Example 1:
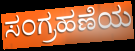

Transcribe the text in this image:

ಸಂಗ್ರಹಣೆಯ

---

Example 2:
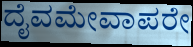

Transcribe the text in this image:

ದೈವಮೇವಾಪರೇ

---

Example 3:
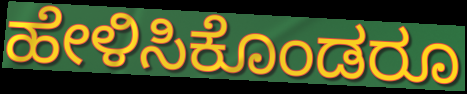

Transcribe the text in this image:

ಹೇಳಿಸಿಕೊಂಡರೂ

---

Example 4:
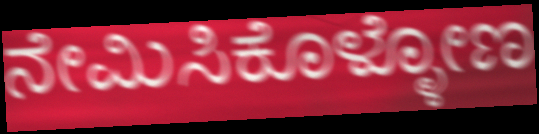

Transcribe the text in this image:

ನೇಮಿಸಿಕೊಳ್ಳೋಣ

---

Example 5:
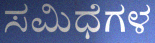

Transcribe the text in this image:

ಸಮಿಧೆಗಳ